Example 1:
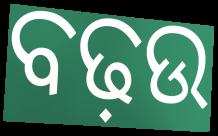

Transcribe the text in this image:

ବଢ଼ଉ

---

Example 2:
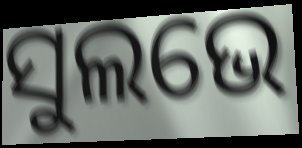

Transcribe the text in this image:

ସୁଲଭେ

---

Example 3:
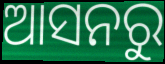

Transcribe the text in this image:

ଆସନରୁ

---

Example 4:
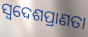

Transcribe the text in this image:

ସ୍ଵଦେଶପ୍ରାଣତା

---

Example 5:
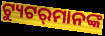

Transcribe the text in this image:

ଟ୍ୟୁଟର୍‍ମାନଙ୍କ